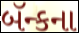
બૅન્કના